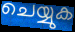
ചെയ്യുക